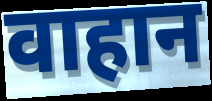
वाहान